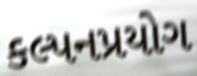
કલ્પનપ્રયોગ